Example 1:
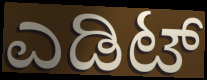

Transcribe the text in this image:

ಎಡಿಟ್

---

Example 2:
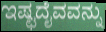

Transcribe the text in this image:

ಇಷ್ಟದೈವವನ್ನು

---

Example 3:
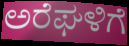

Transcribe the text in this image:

ಅರೆಘಳಿಗೆ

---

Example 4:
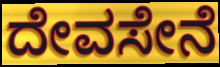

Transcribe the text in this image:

ದೇವಸೇನೆ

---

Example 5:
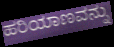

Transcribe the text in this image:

ಹರಿಯಾಣವನ್ನು